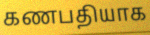
கணபதியாக